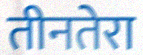
तीनतेरा